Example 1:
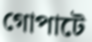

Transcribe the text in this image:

গোপাটে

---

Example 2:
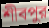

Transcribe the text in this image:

শীবপুর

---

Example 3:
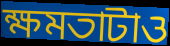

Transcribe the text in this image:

ক্ষমতাটাও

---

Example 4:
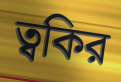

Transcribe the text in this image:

ত্বকির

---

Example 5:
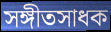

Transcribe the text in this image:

সঙ্গীতসাধক